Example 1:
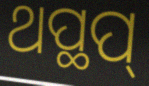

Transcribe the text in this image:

ଥପ୍ଥପ୍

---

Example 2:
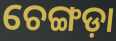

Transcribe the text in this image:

ଚେଙ୍ଗଡ଼ା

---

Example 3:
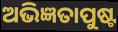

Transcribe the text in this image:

ଅଭିଜ୍ଞତାପୁଷ୍ଟ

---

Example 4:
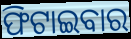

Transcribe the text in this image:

ଫିଟାଇବାର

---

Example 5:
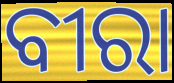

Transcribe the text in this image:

ବୀରା